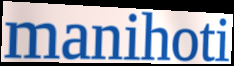
manihoti